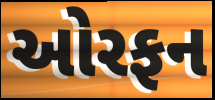
ઓરફન